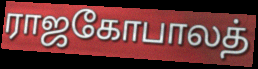
ராஜகோபாலத்